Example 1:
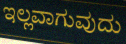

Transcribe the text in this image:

ಇಲ್ಲವಾಗುವುದು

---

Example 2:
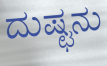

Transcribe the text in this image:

ದುಷ್ಟನು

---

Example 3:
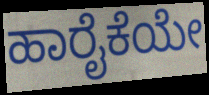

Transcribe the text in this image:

ಹಾರೈಕೆಯೇ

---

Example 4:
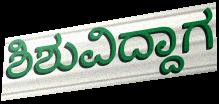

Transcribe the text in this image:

ಶಿಶುವಿದ್ದಾಗ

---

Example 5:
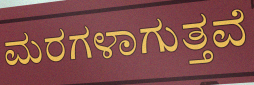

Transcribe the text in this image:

ಮರಗಳಾಗುತ್ತವೆ